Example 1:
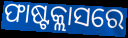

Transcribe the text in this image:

ଫାଷ୍ଟକ୍ଲାସରେ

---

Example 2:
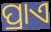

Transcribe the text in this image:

ପ୍ରାଏ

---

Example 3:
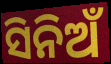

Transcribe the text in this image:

ସିନିଅଁ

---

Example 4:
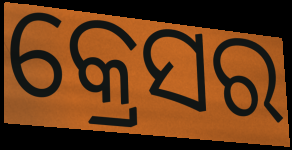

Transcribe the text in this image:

କ୍ରେସର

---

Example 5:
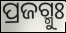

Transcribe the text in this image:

ପ୍ରଜଗ୍ମୁଃ